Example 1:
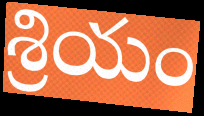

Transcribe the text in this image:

శ్రియం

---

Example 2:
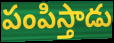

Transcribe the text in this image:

పంపిస్తాడు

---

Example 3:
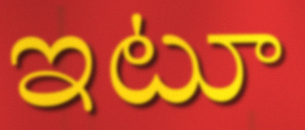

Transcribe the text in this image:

ఇటూ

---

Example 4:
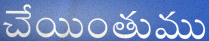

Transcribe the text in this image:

చేయింతుము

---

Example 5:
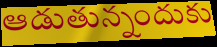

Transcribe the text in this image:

ఆడుతున్నందుకు